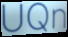
UQn